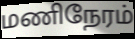
மணிநேரம்